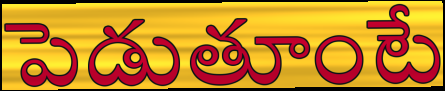
పెడుతూంటే